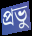
প্ৰভু